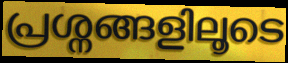
പ്രശ്നങ്ങളിലൂടെ